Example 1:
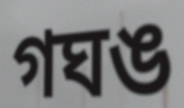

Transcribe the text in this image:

গঘঙ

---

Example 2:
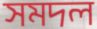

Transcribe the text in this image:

সমদল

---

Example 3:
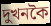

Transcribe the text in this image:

দুখনকৈ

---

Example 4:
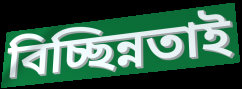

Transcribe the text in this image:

বিচ্ছিন্নতাই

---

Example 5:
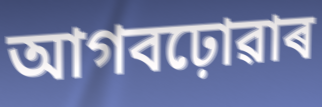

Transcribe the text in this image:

আগবঢ়োৱাৰ